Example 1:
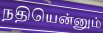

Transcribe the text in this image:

நதியென்னும்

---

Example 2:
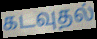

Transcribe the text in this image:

கடவுதல்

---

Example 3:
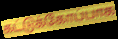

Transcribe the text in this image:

கட்டுக்கோப்பாக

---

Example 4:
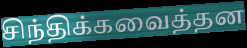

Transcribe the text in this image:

சிந்திக்கவைத்தன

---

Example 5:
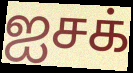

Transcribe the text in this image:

ஐசக்